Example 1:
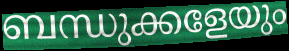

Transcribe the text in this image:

ബന്ധുക്കളേയും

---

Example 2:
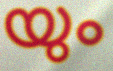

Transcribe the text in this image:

യും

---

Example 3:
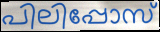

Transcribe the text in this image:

പിലിപ്പോസ്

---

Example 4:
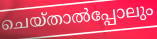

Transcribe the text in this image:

ചെയ്താൽപ്പോലും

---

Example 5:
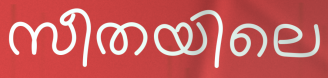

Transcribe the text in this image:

സീതയിലെ